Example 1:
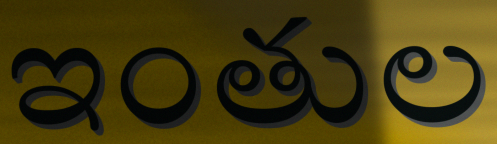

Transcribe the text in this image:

ఇంతుల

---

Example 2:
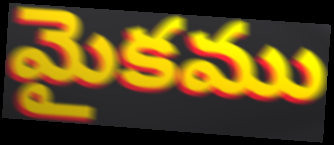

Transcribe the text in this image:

మైకము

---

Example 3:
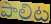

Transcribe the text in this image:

పాలిట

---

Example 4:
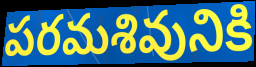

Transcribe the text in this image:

పరమశివునికి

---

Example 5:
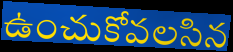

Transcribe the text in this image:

ఉంచుకోవలసిన